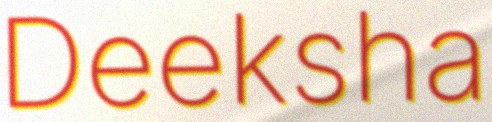
Deeksha